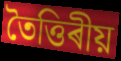
তৈত্তিৰীয়